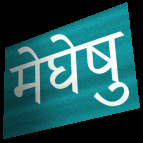
मेघेषु